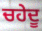
ਚਹੇਦੂ